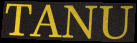
TANU